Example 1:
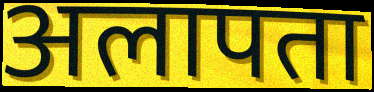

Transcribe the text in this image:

अलापता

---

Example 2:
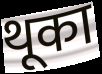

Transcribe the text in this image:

थूका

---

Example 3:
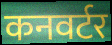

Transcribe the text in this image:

कनवर्टर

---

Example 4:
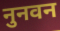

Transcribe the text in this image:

नुनवन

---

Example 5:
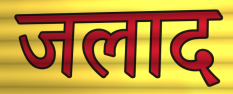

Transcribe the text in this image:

जलाद